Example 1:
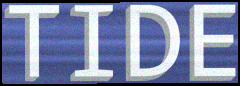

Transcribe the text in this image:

TIDE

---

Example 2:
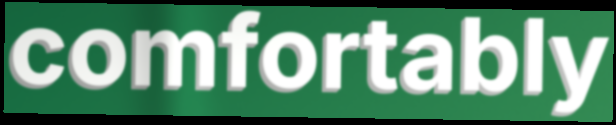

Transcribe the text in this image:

comfortably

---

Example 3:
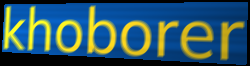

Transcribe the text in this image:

khoborer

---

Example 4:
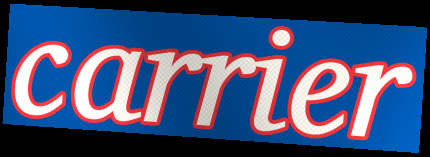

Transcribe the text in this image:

carrier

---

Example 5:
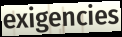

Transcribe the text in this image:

exigencies